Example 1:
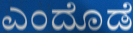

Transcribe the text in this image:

ಎಂದೊಡೆ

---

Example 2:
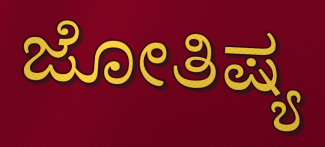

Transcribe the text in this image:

ಜೋತಿಷ್ಯ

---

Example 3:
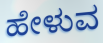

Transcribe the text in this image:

ಹೇಳುವ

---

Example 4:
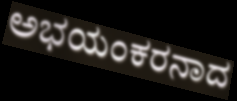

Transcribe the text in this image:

ಅಭಯಂಕರನಾದ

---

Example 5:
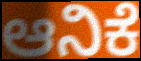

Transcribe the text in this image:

ಆನಿಕೆ